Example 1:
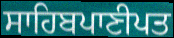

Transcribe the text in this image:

ਸਾਹਿਬਪਾਣੀਪਤ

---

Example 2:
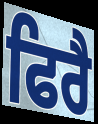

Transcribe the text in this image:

ਫਿਰੈ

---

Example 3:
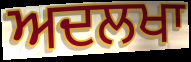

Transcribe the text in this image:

ਅਦਲਖਾ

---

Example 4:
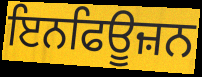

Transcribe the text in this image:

ਇਨਫਿਊਜ਼ਨ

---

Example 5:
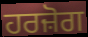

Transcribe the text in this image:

ਹਰਜ਼ੋਗ